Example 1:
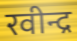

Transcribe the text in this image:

रवीन्द्र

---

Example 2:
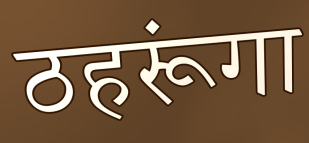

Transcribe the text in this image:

ठहरूंगा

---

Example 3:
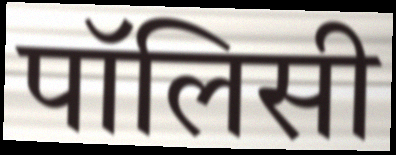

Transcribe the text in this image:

पॉलिसी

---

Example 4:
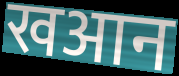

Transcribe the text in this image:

खआन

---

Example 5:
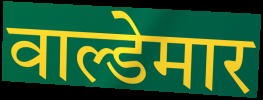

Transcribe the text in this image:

वाल्डेमार